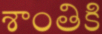
శాంతికి